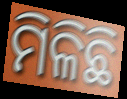
ମିଳିଛି